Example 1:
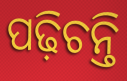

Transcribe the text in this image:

ପଢ଼ିଚନ୍ତି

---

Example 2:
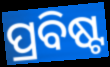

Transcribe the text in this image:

ପ୍ରବିଷ୍ଟ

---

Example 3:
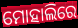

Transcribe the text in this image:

ମୋହାଲିରେ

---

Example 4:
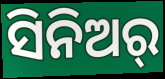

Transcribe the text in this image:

ସିନିଅର୍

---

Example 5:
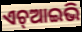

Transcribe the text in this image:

ଏଚ୍ଆଇଭି